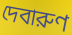
দেবারুণ